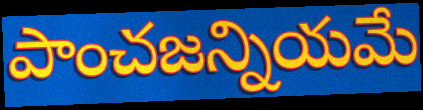
పాంచజన్నియమే